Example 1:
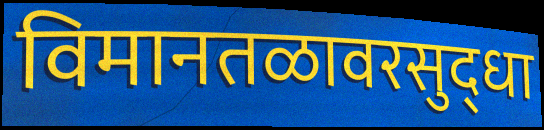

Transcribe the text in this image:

विमानतळावरसुद्धा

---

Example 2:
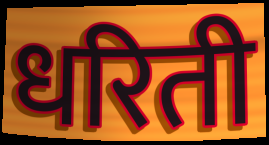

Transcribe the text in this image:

धरिती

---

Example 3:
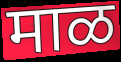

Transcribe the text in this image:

माळ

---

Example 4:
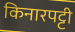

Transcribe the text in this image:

किनारपट्टी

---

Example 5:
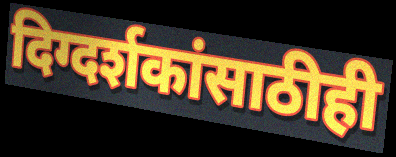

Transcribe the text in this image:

दिग्दर्शकांसाठीही